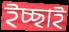
ইচ্ছাই